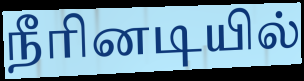
நீரினடியில்